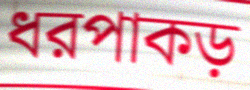
ধরপাকড়